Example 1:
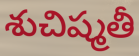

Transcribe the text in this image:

శుచిష్మతీ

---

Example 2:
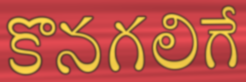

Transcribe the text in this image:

కొనగలిగే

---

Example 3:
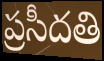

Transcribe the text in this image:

ప్రసీదతి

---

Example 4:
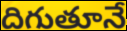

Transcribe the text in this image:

దిగుతూనే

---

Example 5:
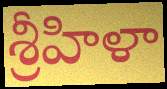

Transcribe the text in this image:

శ్రీహిళా